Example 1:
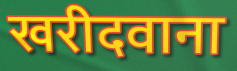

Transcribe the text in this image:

खरीदवाना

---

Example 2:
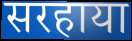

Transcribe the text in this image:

सरहाया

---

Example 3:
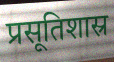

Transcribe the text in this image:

प्रसूतिशास्र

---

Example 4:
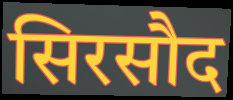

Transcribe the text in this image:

सिरसौद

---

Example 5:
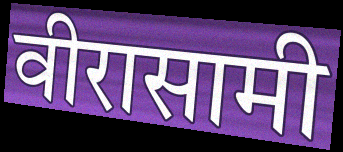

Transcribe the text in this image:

वीरासामी